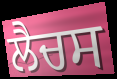
ਲੈਚਸ